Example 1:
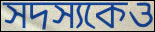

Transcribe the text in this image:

সদস্যকেও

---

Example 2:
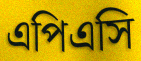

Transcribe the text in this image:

এপিএসি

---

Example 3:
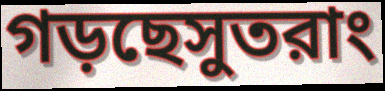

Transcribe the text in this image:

গড়ছেসুতরাং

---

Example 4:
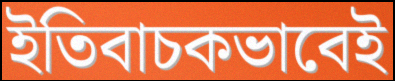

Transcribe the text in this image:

ইতিবাচকভাবেই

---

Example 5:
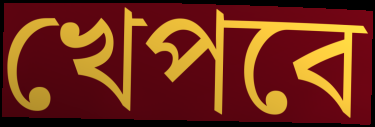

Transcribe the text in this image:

খেপবে